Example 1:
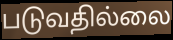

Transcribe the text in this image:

படுவதில்லை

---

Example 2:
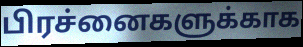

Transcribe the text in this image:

பிரச்னைகளுக்காக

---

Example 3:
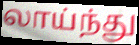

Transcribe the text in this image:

லாய்ந்து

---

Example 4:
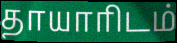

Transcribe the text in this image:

தாயாரிடம்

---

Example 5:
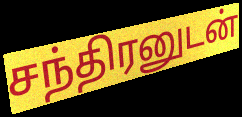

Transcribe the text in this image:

சந்திரனுடன்